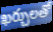
ఖర్చులతో